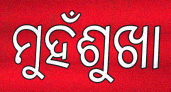
ମୁହଁଶୁଖା